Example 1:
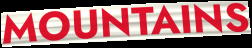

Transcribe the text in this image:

MOUNTAINS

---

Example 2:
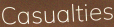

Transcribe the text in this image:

Casualties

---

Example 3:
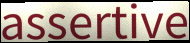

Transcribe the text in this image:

assertive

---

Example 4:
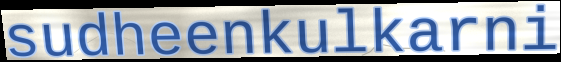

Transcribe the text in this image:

sudheenkulkarni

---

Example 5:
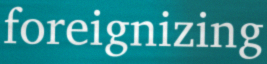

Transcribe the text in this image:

foreignizing